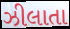
ઝીલાતા